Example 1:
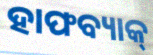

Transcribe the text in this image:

ହାଫବ୍ୟାକ୍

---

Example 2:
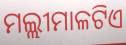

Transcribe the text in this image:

ମଲ୍ଲୀମାଳଟିଏ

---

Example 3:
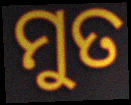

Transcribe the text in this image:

ମୁତ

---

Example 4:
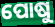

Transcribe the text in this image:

ପୋଷୁ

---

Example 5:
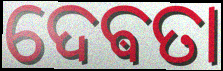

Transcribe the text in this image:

ଦେଵତା